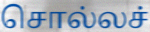
சொல்லச்